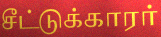
சீட்டுக்காரர்